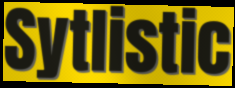
Sytlistic